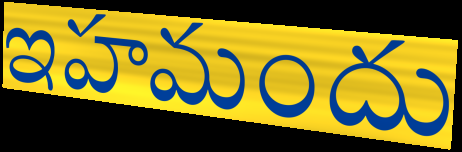
ఇహమందు